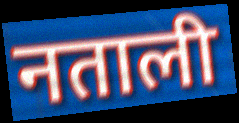
नताली